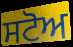
ਸਟੋਅ